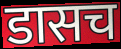
डासच